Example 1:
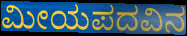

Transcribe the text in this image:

ಮೀಯಪದವಿನ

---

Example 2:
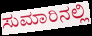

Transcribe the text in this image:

ಸುಮಾರಿನಲ್ಲಿ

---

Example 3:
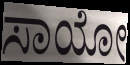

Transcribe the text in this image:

ಸಾಯೋ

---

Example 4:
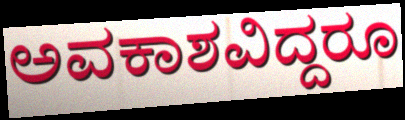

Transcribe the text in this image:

ಅವಕಾಶವಿದ್ದರೂ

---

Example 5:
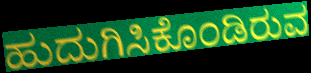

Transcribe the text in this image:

ಹುದುಗಿಸಿಕೊಂಡಿರುವ